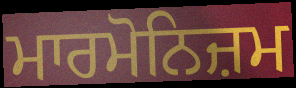
ਮਾਰਮੋਨਿਜ਼ਮ